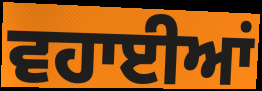
ਵਹਾਈਆਂ